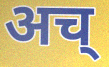
अच्